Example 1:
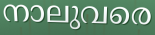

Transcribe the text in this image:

നാലുവരെ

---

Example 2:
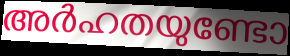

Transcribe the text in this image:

അർഹതയുണ്ടോ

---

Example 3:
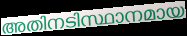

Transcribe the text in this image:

അതിനടിസ്ഥാനമായ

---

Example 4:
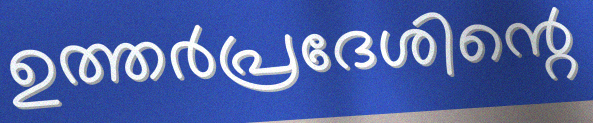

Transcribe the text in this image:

ഉത്തർപ്രദേശിന്റെ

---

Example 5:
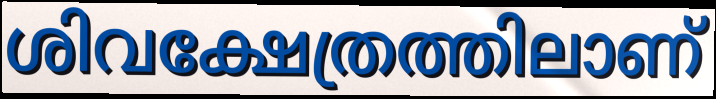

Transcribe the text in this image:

ശിവക്ഷേത്രത്തിലാണ്